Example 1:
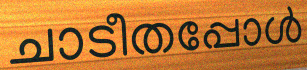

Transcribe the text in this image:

ചാടീതപ്പോൾ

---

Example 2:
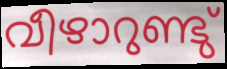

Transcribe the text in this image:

വീഴാറുണ്ടു്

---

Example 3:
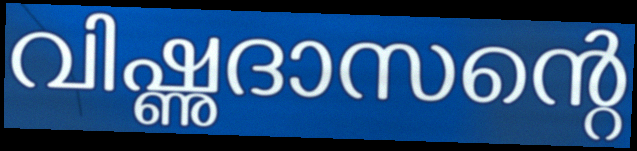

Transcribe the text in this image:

വിഷ്ണുദാസന്റെ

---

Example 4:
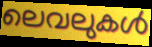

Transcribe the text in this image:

ലെവലുകൾ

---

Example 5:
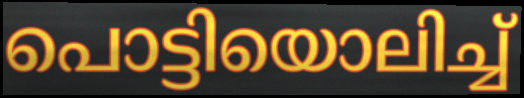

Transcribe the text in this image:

പൊട്ടിയൊലിച്ച്